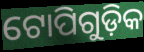
ଟୋପିଗୁଡ଼ିକ